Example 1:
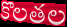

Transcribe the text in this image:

కొలతల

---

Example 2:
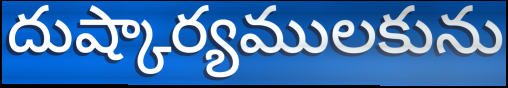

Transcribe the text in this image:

దుష్కార్యములకును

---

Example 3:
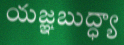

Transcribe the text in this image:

యజ్ఞబుద్ధ్యా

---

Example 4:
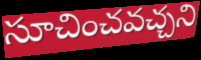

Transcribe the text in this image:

సూచించవచ్చని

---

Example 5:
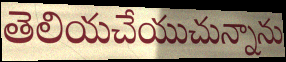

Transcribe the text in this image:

తెలియచేయుచున్నాను